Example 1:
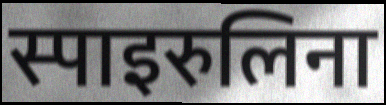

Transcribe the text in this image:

स्पाइरुलिना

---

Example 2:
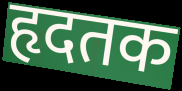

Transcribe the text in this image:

हृदतक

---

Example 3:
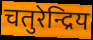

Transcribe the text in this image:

चतुरेन्द्रिय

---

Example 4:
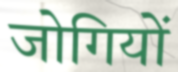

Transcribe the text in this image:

जोगियों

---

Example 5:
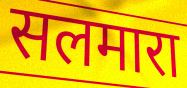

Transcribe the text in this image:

सलमारा